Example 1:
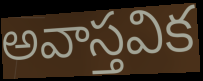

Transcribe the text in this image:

అవాస్తవిక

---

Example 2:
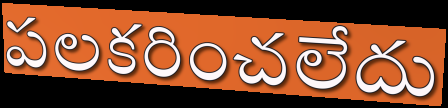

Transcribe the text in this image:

పలకరించలేదు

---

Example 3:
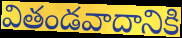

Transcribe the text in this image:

వితండవాదానికి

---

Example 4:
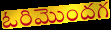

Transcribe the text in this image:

ఓరిమొందగ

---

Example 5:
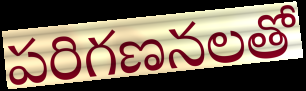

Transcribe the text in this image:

పరిగణనలతో